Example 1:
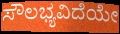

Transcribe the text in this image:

ಸೌಲಭ್ಯವಿದೆಯೇ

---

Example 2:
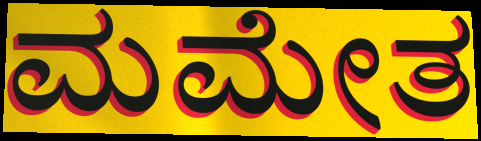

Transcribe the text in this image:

ಮಮೇತ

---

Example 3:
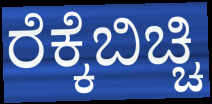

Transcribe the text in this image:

ರೆಕ್ಕೆಬಿಚ್ಚಿ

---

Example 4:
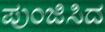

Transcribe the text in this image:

ಪುಂಜಿಸಿದ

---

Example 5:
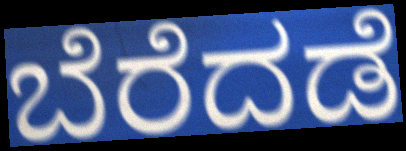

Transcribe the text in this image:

ಬೆರೆದಡೆ